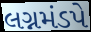
લગ્નમંડપે